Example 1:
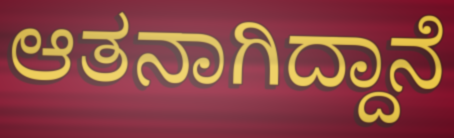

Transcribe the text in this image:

ಆತನಾಗಿದ್ದಾನೆ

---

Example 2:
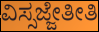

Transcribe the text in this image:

ವಿಸ್ಸಜ್ಜೇತೀತಿ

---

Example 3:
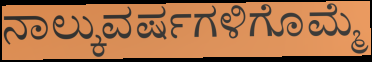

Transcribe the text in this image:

ನಾಲ್ಕುವರ್ಷಗಳಿಗೊಮ್ಮೆ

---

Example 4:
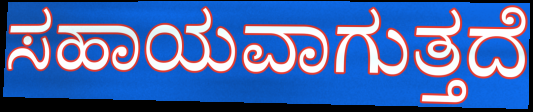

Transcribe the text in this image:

ಸಹಾಯವಾಗುತ್ತದೆ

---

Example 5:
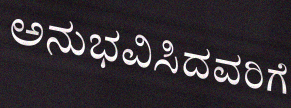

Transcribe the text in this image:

ಅನುಭವಿಸಿದವರಿಗೆ